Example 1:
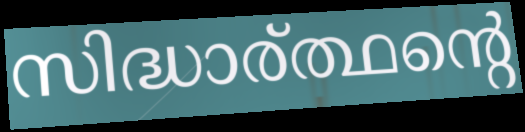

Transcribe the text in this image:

സിദ്ധാര്ത്ഥന്റെ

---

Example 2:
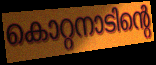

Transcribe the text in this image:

കൊറ്റനാടിന്റെ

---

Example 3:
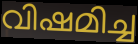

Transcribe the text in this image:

വിഷമിച്ച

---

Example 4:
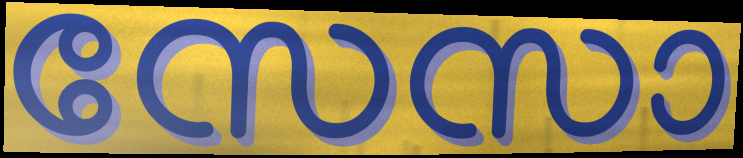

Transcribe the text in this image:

സേസാ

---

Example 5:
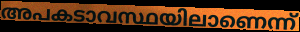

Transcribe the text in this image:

അപകടാവസ്ഥയിലാണെന്ന്